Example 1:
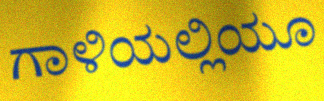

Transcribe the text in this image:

ಗಾಳಿಯಲ್ಲಿಯೂ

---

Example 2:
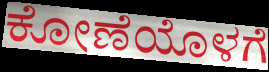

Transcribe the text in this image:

ಕೋಣೆಯೊಳಗೆ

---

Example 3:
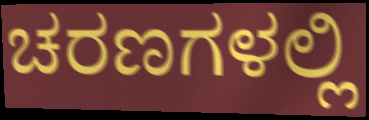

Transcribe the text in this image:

ಚರಣಗಳಲ್ಲಿ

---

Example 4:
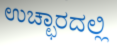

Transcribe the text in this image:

ಉಚ್ಛಾರದಲ್ಲಿ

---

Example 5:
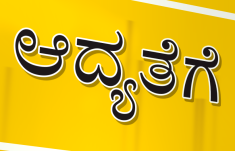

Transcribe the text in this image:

ಆದ್ಯತೆಗೆ